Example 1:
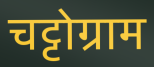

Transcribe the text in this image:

चट्टोग्राम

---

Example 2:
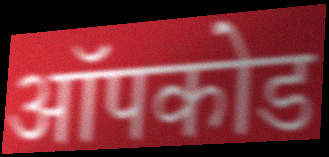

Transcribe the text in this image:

ऑपकोड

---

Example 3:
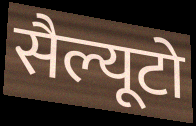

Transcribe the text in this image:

सैल्यूटो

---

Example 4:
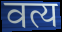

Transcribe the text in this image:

वत्य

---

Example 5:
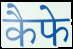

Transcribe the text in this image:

कैफे